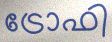
ട്രോഫി